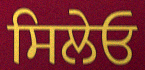
ਸਿਲੇਓ